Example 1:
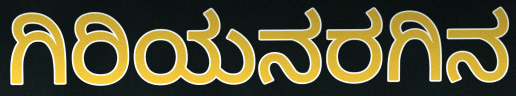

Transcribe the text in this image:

ಗಿರಿಯನರಗಿನ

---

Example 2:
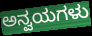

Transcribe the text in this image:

ಅನ್ವಯಗಳು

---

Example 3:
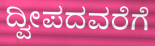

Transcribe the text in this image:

ದ್ವೀಪದವರೆಗೆ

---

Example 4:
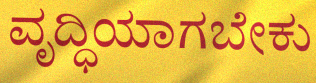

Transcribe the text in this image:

ವೃದ್ಧಿಯಾಗಬೇಕು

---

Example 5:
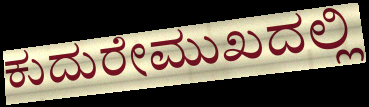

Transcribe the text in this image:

ಕುದುರೇಮುಖದಲ್ಲಿ